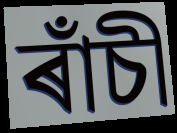
ৰাঁচী